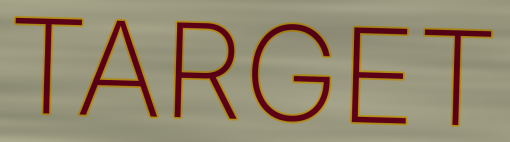
TARGET